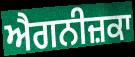
ਐਗਨੀਜ਼ਕਾ